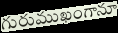
గురుముఖంగానూ